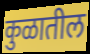
कुळातील